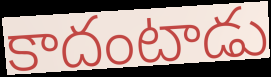
కాదంటాడు